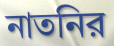
নাতনির